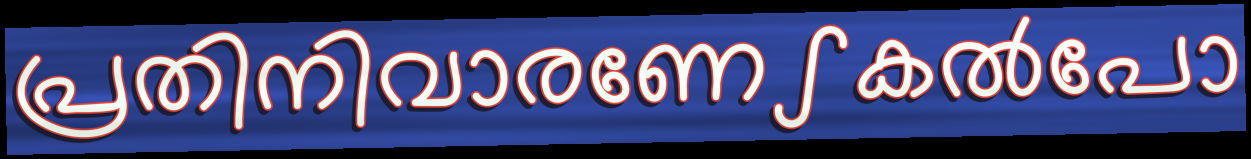
പ്രതിനിവാരണേഽകൽപോ